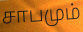
சாபமும்